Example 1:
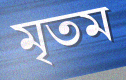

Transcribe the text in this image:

মৃতম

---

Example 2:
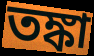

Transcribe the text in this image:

তঙ্কা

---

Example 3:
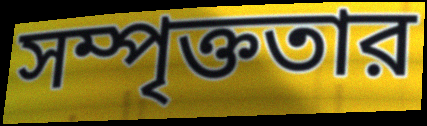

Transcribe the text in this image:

সম্পৃক্ততার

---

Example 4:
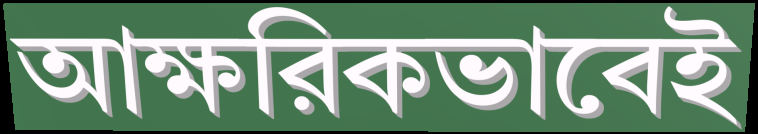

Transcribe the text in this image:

আক্ষরিকভাবেই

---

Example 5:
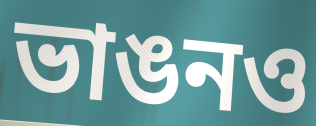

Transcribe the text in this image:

ভাঙনও